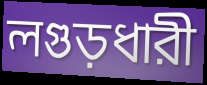
লগুড়ধারী